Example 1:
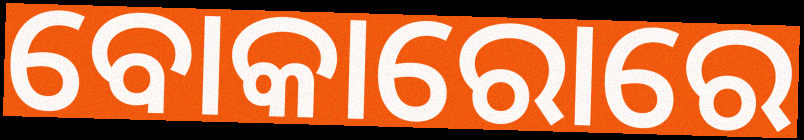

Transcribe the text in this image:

ବୋକାରୋରେ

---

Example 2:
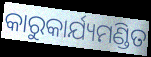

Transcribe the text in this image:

କାରୁକାର୍ଯ୍ୟମଣ୍ଡିତ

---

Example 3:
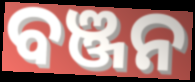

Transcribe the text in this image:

ବଞ୍ଜନ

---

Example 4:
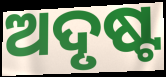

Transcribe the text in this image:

ଅଦୃଷ୍ଟ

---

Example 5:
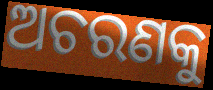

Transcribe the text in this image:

ଅଚରଣକୁ